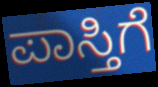
ಪಾಸ್ತಿಗೆ